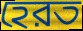
হেরত